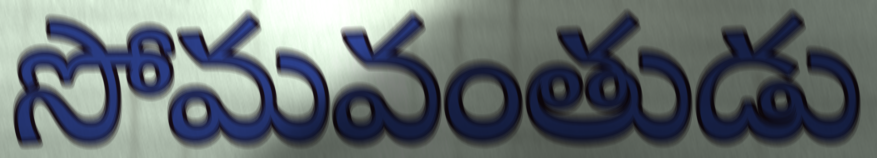
సోమవంతుడు